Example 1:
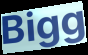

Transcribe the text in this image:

Bigg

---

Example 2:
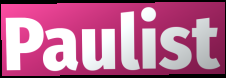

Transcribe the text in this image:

Paulist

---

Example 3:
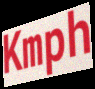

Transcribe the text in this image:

Kmph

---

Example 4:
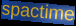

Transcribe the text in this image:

spactime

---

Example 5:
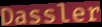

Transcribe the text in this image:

Dassler